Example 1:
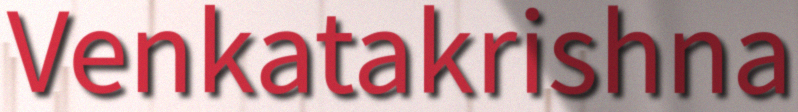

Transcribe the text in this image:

Venkatakrishna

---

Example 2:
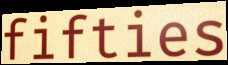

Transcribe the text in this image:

fifties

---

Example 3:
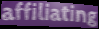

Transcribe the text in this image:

affiliating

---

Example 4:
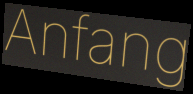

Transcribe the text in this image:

Anfang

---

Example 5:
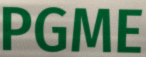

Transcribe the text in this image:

PGME